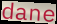
dane